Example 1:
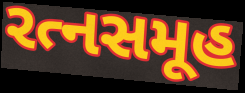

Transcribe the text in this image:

રત્નસમૂહ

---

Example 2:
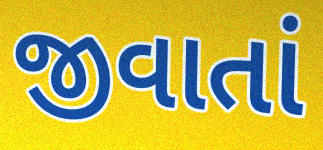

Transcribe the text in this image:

જીવાતાં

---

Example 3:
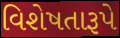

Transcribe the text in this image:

વિશેષતારૂપે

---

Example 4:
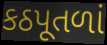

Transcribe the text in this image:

કઠપૂતળાં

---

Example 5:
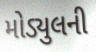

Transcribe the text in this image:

મોડ્યુલની